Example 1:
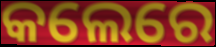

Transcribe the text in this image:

କଲେରେ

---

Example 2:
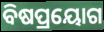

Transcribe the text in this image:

ବିଷପ୍ରୟୋଗ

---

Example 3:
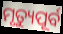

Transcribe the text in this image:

ମୃତ୍ୟୁପୂର୍ବ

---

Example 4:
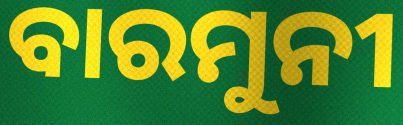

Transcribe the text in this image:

ବାରମୁନୀ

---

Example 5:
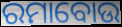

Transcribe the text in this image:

ରମାବୋଉ